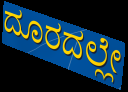
ದೂರದಲ್ಲೇ